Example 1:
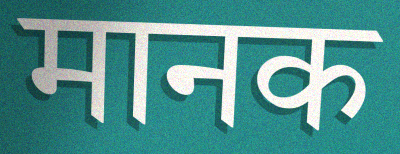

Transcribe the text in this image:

मानक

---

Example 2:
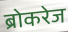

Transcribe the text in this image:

ब्रोकरेज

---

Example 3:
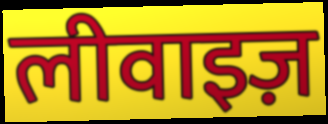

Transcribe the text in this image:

लीवाइज़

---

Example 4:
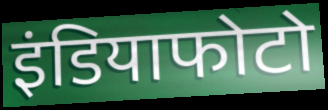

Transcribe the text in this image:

इंडियाफोटो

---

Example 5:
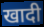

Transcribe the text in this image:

खादी